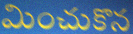
మించుకొన